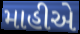
માહીએ